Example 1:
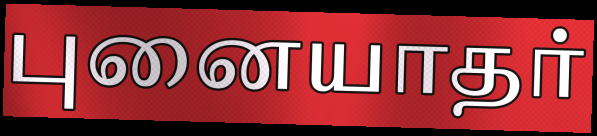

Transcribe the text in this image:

புனையாதர்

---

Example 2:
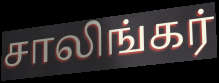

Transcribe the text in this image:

சாலிங்கர்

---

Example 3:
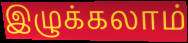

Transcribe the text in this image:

இழுக்கலாம்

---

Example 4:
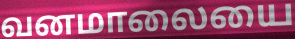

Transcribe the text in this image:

வனமாலையை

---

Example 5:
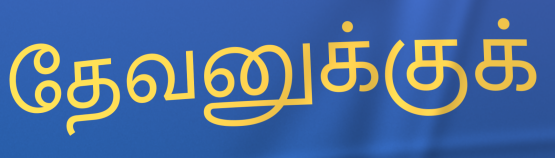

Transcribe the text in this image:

தேவனுக்குக்